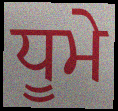
ਧੂਮੇ